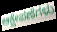
ಆಕ್ಷೇಪಣೆಗಳು